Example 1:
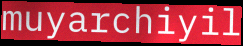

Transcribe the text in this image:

muyarchiyil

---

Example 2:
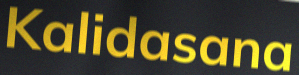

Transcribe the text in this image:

Kalidasana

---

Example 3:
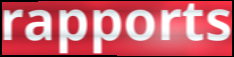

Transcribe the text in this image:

rapports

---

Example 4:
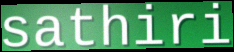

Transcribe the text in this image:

sathiri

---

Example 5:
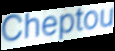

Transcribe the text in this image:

Cheptou